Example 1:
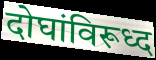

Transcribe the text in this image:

दोघांविरूध्द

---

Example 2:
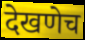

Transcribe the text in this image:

देखणेच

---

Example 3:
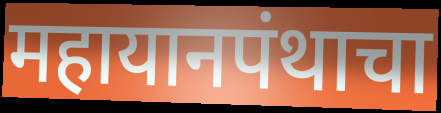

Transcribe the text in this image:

महायानपंथाचा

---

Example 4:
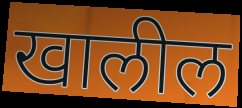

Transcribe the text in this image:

खालील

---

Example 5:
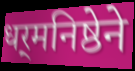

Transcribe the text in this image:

धर्मनिष्ठेने